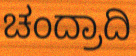
ಚಂದ್ರಾದಿ